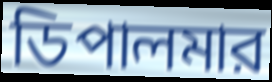
ডিপালমার